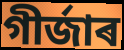
গীৰ্জাৰ